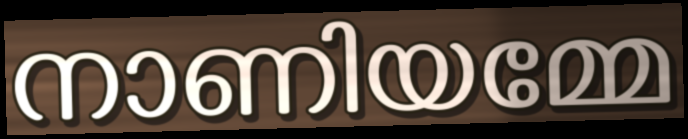
നാണിയമ്മേ